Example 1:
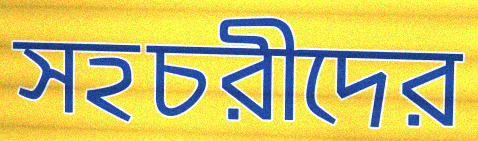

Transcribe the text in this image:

সহচরীদের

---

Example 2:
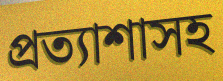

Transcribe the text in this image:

প্রত্যাশাসহ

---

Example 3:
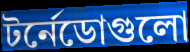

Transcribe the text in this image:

টর্নেডোগুলো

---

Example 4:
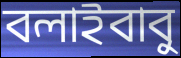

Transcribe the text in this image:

বলাইবাবু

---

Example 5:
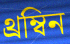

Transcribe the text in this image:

থ্রম্বিন